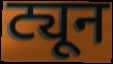
ट्यून